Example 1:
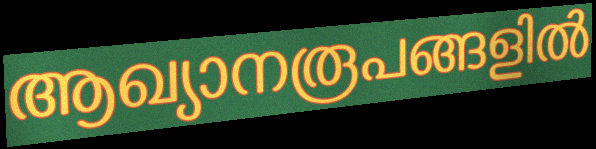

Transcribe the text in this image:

ആഖ്യാനരൂപങ്ങളിൽ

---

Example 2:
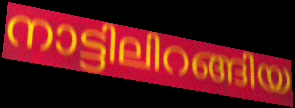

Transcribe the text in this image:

നാട്ടിലിറങ്ങിയ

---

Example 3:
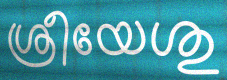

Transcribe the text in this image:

ശ്രീയേശു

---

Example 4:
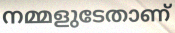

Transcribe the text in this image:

നമ്മളുടേതാണ്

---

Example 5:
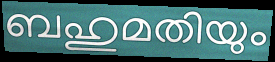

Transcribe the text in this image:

ബഹുമതിയും